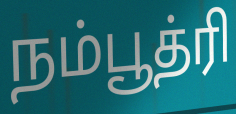
நம்பூத்ரி